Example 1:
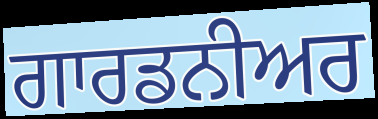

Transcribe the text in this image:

ਗਾਰਡਨੀਅਰ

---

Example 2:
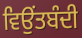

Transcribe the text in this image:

ਵਿਉਂਤਬੰਦੀ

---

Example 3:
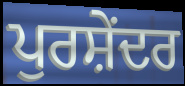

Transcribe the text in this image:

ਪੁਰਸ਼ੇਂਦਰ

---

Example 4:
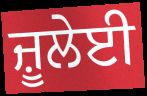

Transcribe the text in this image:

ਜ਼ੂਲੇਈ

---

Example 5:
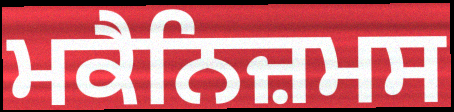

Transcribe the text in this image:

ਮਕੈਨਿਜ਼ਮਸ